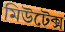
মিউটেক্স